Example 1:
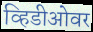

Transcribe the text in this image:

व्हिडीओवर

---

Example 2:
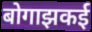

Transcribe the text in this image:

बोगाझकई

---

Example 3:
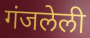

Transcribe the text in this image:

गंजलेली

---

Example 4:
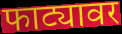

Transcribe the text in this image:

फाट्यावर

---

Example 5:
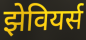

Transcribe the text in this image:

झेवियर्स